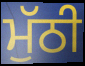
ਮੁੱਠੀ